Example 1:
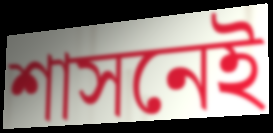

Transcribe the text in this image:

শাসনেই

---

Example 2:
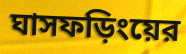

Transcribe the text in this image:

ঘাসফড়িংয়ের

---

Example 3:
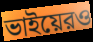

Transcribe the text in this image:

ভাইয়েরও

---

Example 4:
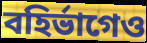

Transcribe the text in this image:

বহির্ভাগেও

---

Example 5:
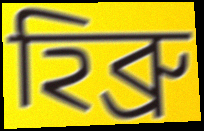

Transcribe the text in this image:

হিব্রু